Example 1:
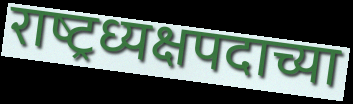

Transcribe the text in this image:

राष्ट्रध्यक्षपदाच्या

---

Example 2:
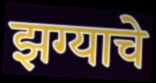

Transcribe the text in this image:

झग्याचे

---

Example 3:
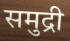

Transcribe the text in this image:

समुद्री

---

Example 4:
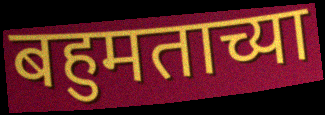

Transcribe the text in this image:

बहुमताच्या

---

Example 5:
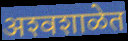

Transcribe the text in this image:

अश्वशाळेत